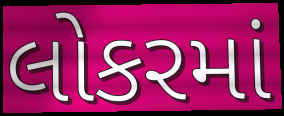
લોકરમાં